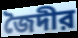
জৈদীর